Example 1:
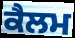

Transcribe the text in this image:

ਕੈਲਮ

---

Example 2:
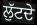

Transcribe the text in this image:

ਲੁੱਟਦੇ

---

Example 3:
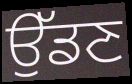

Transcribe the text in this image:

ਉੱਡਣ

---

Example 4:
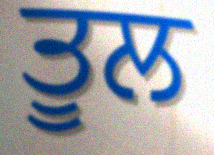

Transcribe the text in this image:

ਤੂਲ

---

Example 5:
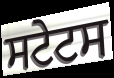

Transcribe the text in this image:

ਸਟੇਟਸ